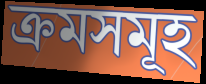
ক্ৰমসমূহ